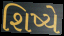
શિષ્યે